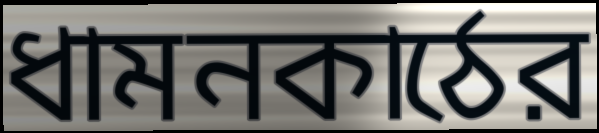
ধামনকাঠের